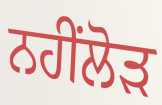
ਨਹੀਂਲੋੜ